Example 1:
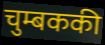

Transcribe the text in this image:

चुम्बककी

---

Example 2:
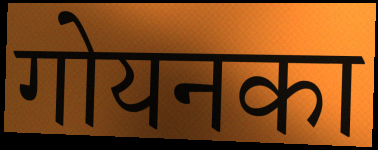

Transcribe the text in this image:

गोयनका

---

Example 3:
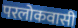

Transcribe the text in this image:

परलोकवासी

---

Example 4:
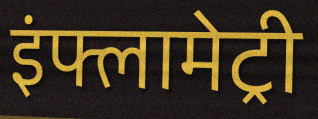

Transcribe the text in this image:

इंफ्लामेट्री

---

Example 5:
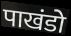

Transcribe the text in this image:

पाखंडो